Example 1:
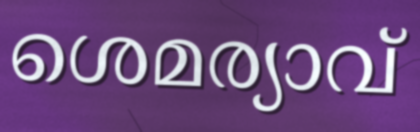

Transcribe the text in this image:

ശെമര്യാവ്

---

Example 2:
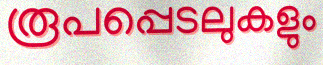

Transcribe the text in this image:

രൂപപ്പെടലുകളും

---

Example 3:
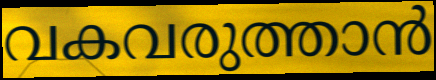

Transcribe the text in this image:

വകവരുത്താൻ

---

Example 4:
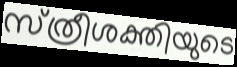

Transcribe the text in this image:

സ്‌ത്രീശക്തിയുടെ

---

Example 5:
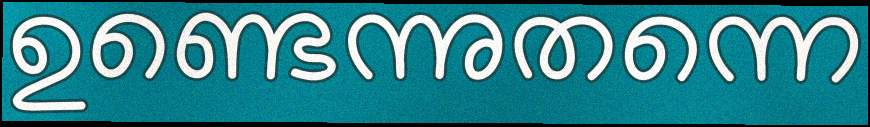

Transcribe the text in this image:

ഉണ്ടെന്നുതന്നെ